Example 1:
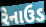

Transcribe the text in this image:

રેનાઉડ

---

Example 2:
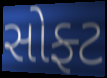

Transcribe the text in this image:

સોફ્ટ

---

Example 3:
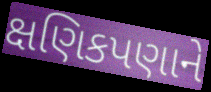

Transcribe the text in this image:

ક્ષણિકપણાને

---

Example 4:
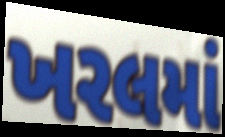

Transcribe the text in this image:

ખરલમાં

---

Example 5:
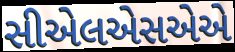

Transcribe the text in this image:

સીએલએસએએ